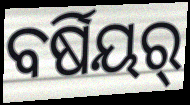
ବର୍ଷିୟର୍